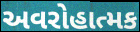
અવરોહાત્મક